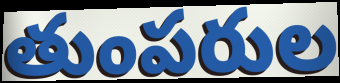
తుంపరుల